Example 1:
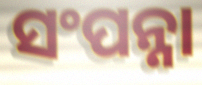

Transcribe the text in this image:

ସଂପନ୍ନା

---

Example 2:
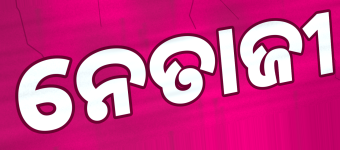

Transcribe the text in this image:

ନେତାଜୀ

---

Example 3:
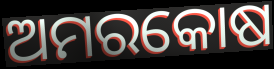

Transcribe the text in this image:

ଅମରକୋଷ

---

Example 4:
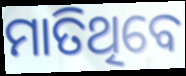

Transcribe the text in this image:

ମାତିଥିବେ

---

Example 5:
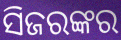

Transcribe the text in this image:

ସିଜରଙ୍କର